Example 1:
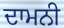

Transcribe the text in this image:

ਦਾਮਨੀ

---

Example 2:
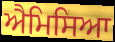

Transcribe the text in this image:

ਐਮਿਸਿਆ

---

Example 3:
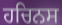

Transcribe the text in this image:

ਹਚਿਨਸ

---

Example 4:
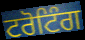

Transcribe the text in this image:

ਟਰੋਟਿੰਗ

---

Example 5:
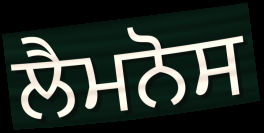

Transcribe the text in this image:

ਲੈਮਨੋਸ